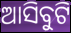
ଆସିବୁଟି